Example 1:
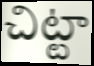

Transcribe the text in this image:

చిట్టా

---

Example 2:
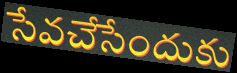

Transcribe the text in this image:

సేవచేసేందుకు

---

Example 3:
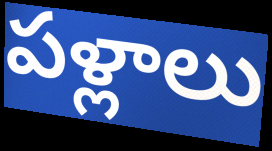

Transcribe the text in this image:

పళ్లాలు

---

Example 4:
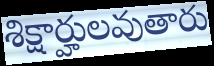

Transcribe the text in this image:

శిక్షార్హులవుతారు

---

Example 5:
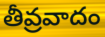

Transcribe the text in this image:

తీవ్రవాదం